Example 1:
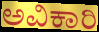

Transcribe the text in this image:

ಅವಿಕಾರಿ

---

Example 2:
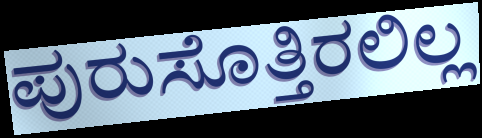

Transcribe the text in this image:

ಪುರುಸೊತ್ತಿರಲಿಲ್ಲ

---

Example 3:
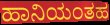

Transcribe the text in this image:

ಹಾನಿಯಂತಹ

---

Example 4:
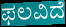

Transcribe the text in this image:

ಫಲವಿದೆ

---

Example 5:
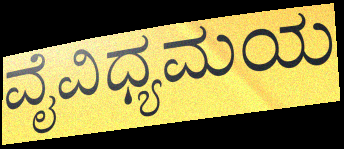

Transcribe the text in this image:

ವೈವಿಧ್ಯಮಯ